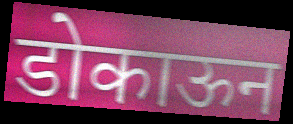
डोकाऊन